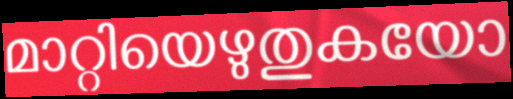
മാറ്റിയെഴുതുകയോ